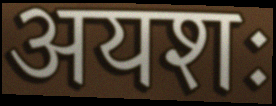
अयशः